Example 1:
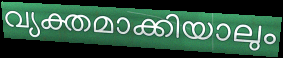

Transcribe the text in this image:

വ്യക്തമാക്കിയാലും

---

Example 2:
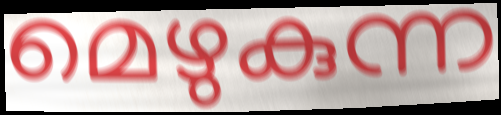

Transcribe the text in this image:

മെഴുകുന്ന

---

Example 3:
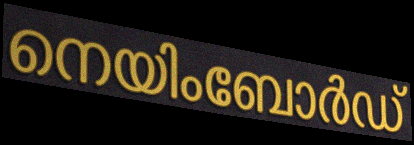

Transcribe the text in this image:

നെയിംബോർഡ്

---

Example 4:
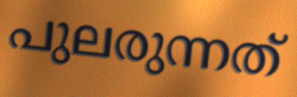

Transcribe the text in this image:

പുലരുന്നത്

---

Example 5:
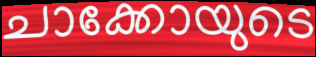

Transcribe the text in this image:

ചാക്കോയുടെ